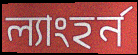
ল্যাংহর্ন